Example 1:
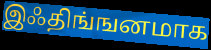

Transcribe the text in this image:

இஃதிங்ஙனமாக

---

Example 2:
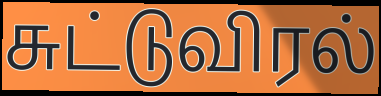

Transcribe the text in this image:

சுட்டுவிரல்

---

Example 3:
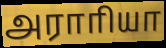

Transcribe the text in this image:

அராரியா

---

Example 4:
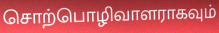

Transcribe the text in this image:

சொற்பொழிவாளராகவும்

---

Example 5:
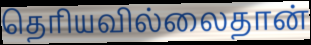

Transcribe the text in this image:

தெரியவில்லைதான்